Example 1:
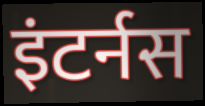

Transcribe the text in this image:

इंटर्नस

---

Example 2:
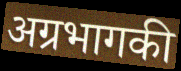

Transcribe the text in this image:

अग्रभागकी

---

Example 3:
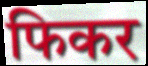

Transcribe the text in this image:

फिकर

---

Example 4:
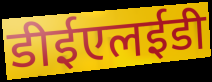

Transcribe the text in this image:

डीईएलईडी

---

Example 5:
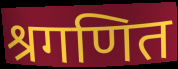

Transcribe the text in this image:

श्रगणित